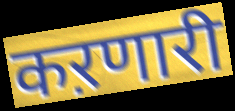
कऱणारी